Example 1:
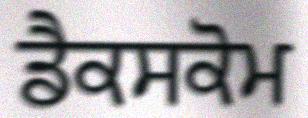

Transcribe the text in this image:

ਡੈਕਸਕੋਮ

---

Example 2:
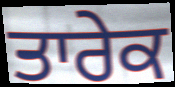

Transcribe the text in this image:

ਤਾਰੇਕ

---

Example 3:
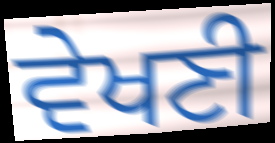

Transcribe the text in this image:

ਵੇਖਣੀ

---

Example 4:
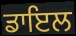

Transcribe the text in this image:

ਡਾਇਲ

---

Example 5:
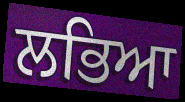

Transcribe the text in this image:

ਲਭਿਆ